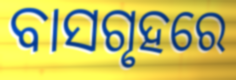
ବାସଗୃହରେ